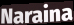
Naraina